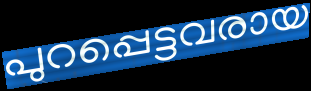
പുറപ്പെട്ടവരായ